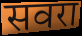
सवरा